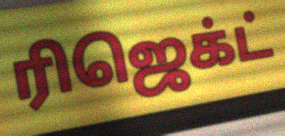
ரிஜெக்ட்